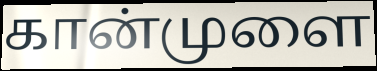
கான்முளை